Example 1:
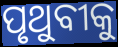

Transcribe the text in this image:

ପୃଥୁବୀକୁ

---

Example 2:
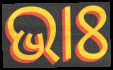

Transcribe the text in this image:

ଭାଃ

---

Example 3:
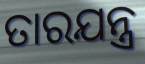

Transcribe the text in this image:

ତାରଯନ୍ତ୍ର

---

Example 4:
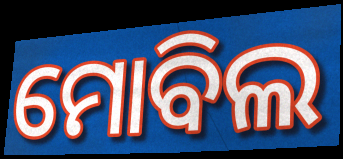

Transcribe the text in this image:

ମୋବିଲ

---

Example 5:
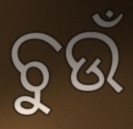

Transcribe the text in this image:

ଚୁଉଁ